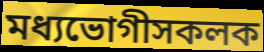
মধ্যভোগীসকলক